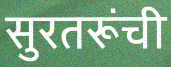
सुरतरूंची